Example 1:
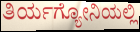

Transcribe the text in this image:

ತಿರ್ಯಗ್ಯೋನಿಯಲ್ಲಿ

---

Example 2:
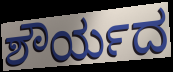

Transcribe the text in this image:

ಶೌರ್ಯದ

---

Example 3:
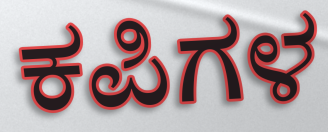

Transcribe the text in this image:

ಕಪಿಗಳ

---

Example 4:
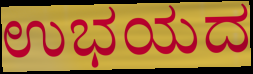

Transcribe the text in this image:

ಉಭಯದ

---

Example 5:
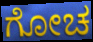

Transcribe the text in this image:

ಗೋಚ